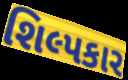
શિલ્પકાર